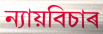
ন্যায়বিচাৰ